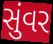
સુંવર